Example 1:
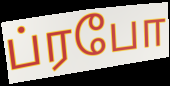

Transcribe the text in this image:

ப்ரபோ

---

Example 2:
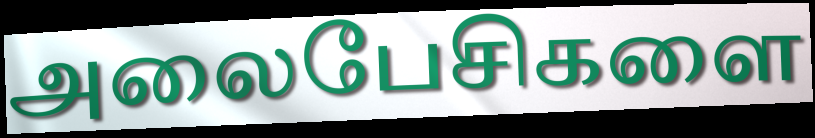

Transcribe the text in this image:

அலைபேசிகளை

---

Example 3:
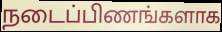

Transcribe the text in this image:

நடைப்பிணங்களாக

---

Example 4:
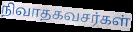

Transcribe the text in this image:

நிவாதகவசர்கள்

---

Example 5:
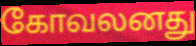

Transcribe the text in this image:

கோவலனது